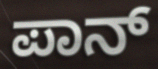
ಪಾನ್